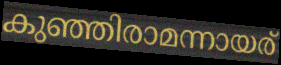
കുഞ്ഞിരാമന്നായര്